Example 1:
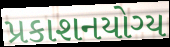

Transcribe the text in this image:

પ્રકાશનયોગ્ય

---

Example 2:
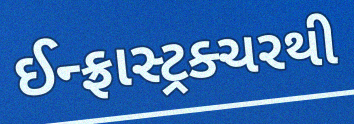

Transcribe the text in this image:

ઈન્ફ્રાસ્ટ્રક્ચરથી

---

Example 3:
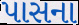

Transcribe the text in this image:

પાસના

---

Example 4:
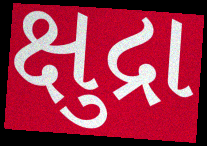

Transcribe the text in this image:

ક્ષુદ્રા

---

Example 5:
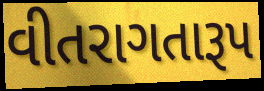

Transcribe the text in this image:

વીતરાગતારૂપ